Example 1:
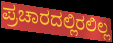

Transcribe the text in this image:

ಪ್ರಚಾರದಲ್ಲಿರಲಿಲ್ಲ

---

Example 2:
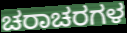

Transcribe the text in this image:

ಚರಾಚರಗಳ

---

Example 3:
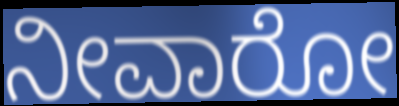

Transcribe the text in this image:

ನೀವಾರೋ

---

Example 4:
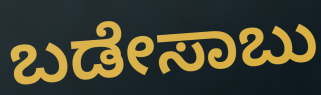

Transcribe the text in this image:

ಬಡೇಸಾಬು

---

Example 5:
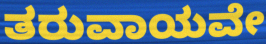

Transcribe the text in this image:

ತರುವಾಯವೇ